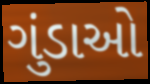
ગુંડાઓ